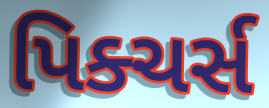
પિક્ચર્સ